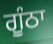
ਗੂੰਠਾ